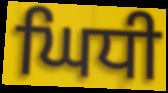
ਘਿਧੀ